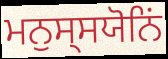
ਮਨੁਸ੍ਸਯੋਨਿਂ